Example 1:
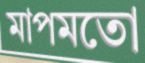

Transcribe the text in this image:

মাপমতো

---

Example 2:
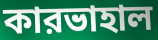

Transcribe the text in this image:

কারভাহাল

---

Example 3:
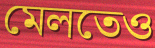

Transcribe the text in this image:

মেলতেও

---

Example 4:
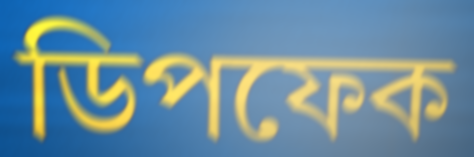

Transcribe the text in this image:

ডিপফেক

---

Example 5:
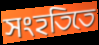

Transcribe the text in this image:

সংহতিতে